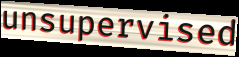
unsupervised